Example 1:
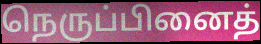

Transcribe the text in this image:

நெருப்பினைத்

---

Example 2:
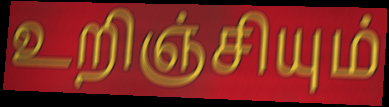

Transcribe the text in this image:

உறிஞ்சியும்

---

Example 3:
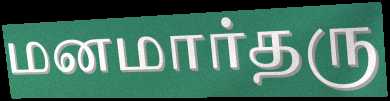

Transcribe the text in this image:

மனமார்தரு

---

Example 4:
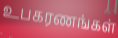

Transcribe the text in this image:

உபகரணங்கள்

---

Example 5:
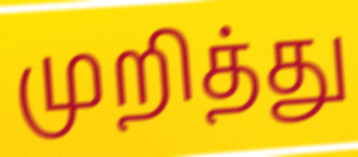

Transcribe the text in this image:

முறித்து